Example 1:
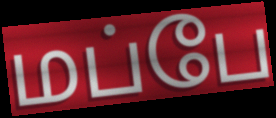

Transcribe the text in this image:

மப்பே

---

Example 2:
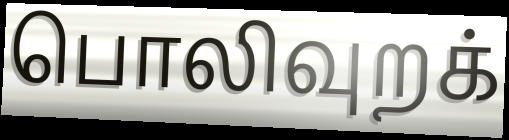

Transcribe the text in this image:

பொலிவுறக்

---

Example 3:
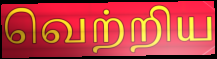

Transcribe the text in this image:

வெற்றிய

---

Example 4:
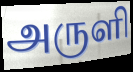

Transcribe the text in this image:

அருளி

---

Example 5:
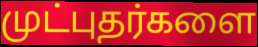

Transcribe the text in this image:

முட்புதர்களை